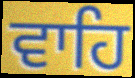
ਵਾਹਿ